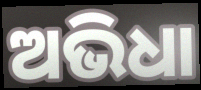
ଅଭିଧା